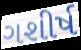
ગશીર્ષ